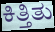
ಕಿತ್ತಿತು